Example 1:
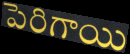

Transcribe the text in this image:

పెరిగాయి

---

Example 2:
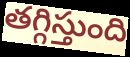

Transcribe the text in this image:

తగ్గిస్తుంది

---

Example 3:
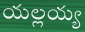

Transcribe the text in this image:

యల్లయ్య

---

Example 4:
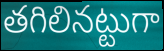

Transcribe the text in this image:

తగిలినట్టుగా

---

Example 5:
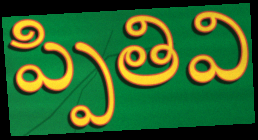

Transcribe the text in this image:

ప్పితివి